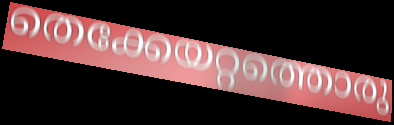
തെക്കേയറ്റത്തൊരു